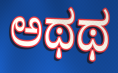
ಅಥಥ